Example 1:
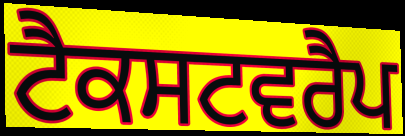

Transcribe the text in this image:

ਟੈਕਸਟਵਰੈਪ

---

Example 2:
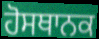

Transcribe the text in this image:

ਹੋਸਥਾਨਕ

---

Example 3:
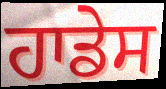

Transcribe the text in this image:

ਹਾਡੇਸ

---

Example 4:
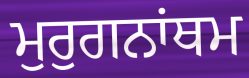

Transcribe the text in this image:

ਮੁਰੁਗਨਾਂਥਮ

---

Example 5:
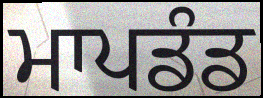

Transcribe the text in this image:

ਮਾਪਡੰਡ